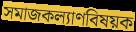
সমাজকল্যাণবিষয়ক